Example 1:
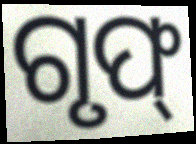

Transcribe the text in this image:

ଗୃଫ୍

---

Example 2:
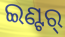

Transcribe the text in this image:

ଇଣ୍ଟର୍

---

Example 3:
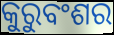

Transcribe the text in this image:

କୁରୁବଂଶର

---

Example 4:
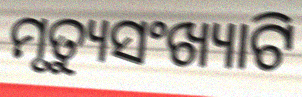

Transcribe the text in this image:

ମୃତ୍ୟୁସଂଖ୍ୟାଟି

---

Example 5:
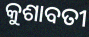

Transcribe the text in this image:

କୁଶାବତୀ